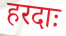
हरदाः